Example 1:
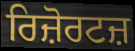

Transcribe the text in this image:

ਰਿਜ਼ੋਰਟਜ਼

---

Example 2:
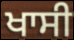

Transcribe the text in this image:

ਖਾਸੀ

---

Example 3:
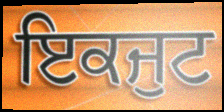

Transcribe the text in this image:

ਇਕਜੁਟ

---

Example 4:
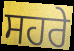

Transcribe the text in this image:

ਸਹਰੇ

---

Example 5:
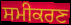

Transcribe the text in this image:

ਸਮੀਕਰਣ